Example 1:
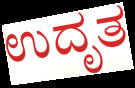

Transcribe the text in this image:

ಉದೃತ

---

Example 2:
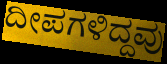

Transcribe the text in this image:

ದೀಪಗಳಿದ್ದವು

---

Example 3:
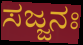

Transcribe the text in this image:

ಸಜ್ಜನಃ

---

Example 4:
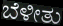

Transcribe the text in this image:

ಬೆಳೀತು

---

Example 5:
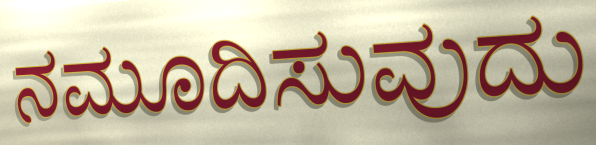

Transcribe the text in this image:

ನಮೂದಿಸುವುದು